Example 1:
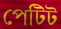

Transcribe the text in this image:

পেটিট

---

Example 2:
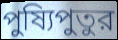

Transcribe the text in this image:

পুষ্যিপুতুর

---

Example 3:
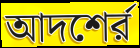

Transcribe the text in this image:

আদশের্র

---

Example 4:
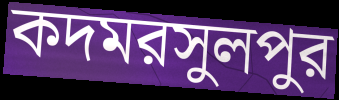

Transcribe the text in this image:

কদমরসুলপুর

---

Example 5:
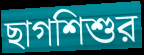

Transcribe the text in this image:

ছাগশিশুর